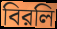
বিরলি